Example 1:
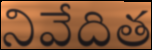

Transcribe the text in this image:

నివేదిత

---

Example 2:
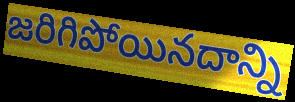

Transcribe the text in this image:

జరిగిపోయినదాన్ని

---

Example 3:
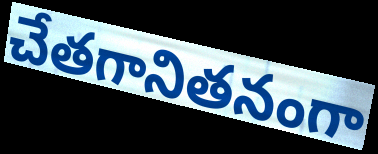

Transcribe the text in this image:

చేతగానితనంగా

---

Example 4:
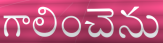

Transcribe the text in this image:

గాలించెను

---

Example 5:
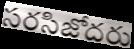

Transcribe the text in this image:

సరసిజోదరు